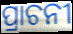
ପ୍ରାଚନୀ